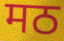
मठ